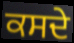
ਕਸਦੇ